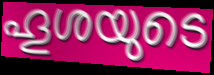
ഹൂശയുടെ